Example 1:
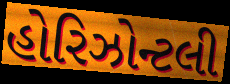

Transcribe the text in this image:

હોરિઝોન્ટલી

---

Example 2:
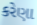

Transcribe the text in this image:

કરેણા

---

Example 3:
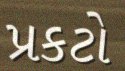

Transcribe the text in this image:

પ્રકટો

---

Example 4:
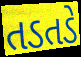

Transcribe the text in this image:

તડતડે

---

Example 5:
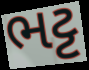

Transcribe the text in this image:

ભટ્ટ